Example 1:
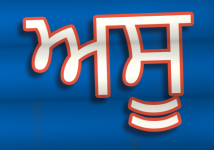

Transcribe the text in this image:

ਅਸੂ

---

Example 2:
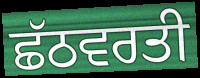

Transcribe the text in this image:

ਛੱਠਵਰਤੀ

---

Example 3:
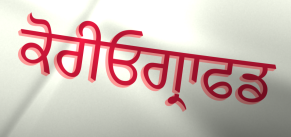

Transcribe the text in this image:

ਕੋਰੀਓਗ੍ਰਾਫਡ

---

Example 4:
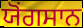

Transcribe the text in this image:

ਯੋਂਗਸਾਨ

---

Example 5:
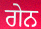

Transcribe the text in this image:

ਗੇਨ